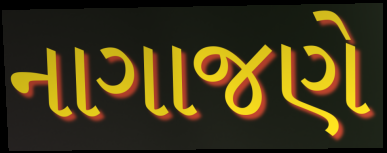
નાગાજણે